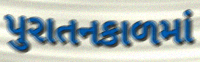
પુરાતનકાળમાં